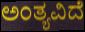
ಅಂತ್ಯವಿದೆ